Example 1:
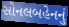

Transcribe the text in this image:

સોનલબહેનનું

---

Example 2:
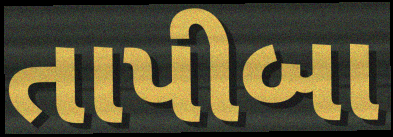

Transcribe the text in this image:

તાપીબા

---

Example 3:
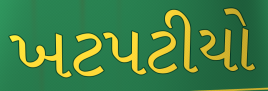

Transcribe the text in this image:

ખટપટીયો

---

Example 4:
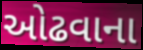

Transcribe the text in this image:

ઓઢવાના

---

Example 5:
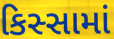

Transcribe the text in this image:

કિસ્સામાં